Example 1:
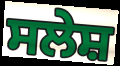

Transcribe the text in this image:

ਸਲੇਸ਼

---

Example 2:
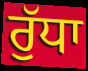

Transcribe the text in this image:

ਰੁੱਧਾ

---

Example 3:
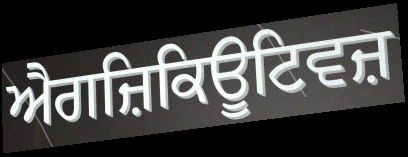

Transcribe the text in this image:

ਐਗਜ਼ਿਕਿਊਟਿਵਜ਼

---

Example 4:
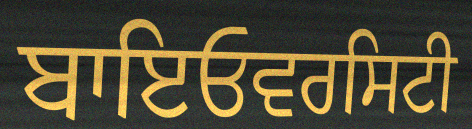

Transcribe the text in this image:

ਬਾਇਓਵਰਸਿਟੀ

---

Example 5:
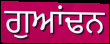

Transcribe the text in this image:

ਗੁਆਂਢਨ